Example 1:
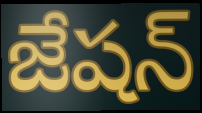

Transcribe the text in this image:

జేషన్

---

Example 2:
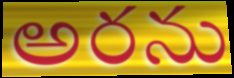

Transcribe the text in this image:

అరను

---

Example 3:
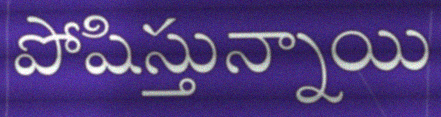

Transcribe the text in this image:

పోషిస్తున్నాయి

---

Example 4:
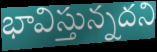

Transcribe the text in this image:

భావిస్తున్నదని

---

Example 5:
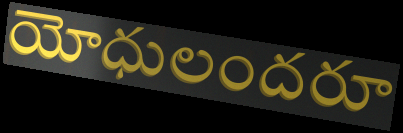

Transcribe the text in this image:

యోధులందరూ